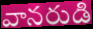
వానరుడి